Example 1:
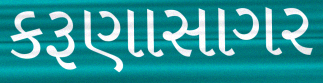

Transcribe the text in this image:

કરૂણાસાગર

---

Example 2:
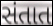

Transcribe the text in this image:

સંતાત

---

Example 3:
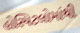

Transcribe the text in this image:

હોસ્પિટલોમાંથી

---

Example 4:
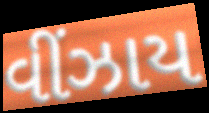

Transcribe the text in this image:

વીંઝાય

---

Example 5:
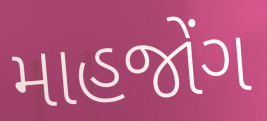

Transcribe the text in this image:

માહજોંગ